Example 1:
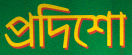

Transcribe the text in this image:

প্রদিশো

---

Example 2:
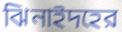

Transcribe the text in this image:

ঝিনাইদহের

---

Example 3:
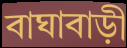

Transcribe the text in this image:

বাঘাবাড়ী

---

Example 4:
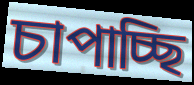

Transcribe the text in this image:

চাপাচ্ছি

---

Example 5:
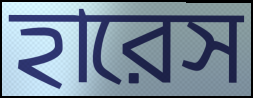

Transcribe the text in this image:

হারেস